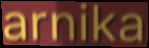
arnika